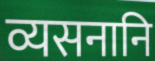
व्यसनानि